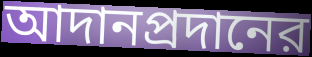
আদানপ্রদানের